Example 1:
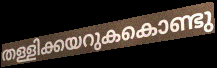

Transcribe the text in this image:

തള്ളിക്കയറുകകൊണ്ടു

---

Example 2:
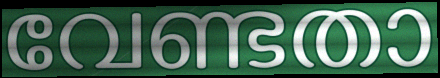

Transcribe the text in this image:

വേണ്ടതാ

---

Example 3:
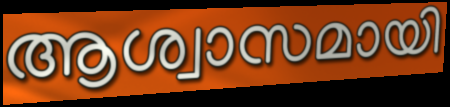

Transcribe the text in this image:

ആശ്വാസമായി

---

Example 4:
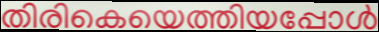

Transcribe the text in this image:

തിരികെയെത്തിയപ്പോൾ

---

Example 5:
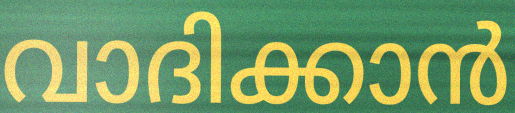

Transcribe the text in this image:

വാദിക്കാൻ